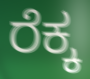
ರೆಕ್ಕ